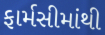
ફાર્મસીમાંથી